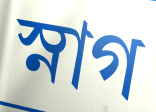
স্নাগ